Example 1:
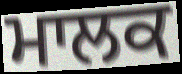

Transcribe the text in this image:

ਮਾਲਕ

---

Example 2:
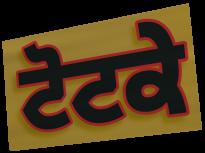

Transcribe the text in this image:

ਟੋਟਕੇ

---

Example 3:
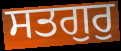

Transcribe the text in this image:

ਸਤਗੁਰੁ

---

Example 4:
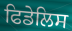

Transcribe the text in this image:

ਫਿਡੇਲਿਸ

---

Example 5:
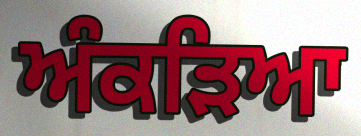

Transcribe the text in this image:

ਅੰਕੜਿਆ